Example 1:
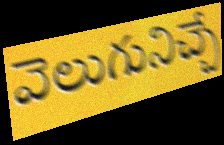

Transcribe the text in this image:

వెలుగునిచ్చే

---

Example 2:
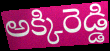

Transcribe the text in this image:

అక్కిరెడ్డి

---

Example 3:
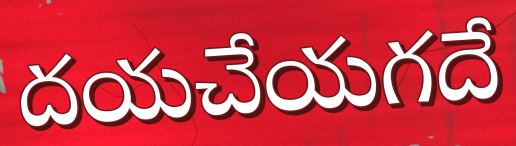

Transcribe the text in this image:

దయచేయగదే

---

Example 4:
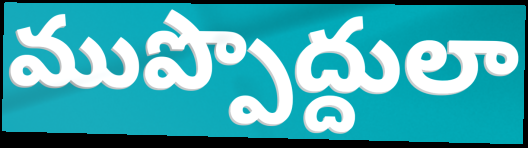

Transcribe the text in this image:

ముప్పొద్దులా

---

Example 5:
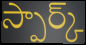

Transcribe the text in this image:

స్పార్క్